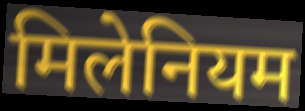
मिलेनियम